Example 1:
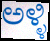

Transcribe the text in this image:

ಅಳ್ಳಿ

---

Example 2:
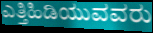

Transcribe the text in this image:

ಎತ್ತಿಹಿಡಿಯುವವರು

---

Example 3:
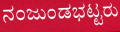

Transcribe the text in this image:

ನಂಜುಂಡಭಟ್ಟರು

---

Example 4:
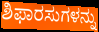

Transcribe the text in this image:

ಶಿಫಾರಸುಗಳನ್ನು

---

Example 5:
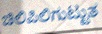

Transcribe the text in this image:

ಚಿಲಿಪಿಲಿಗುಟ್ಟುತ